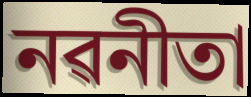
নৱনীতা